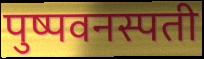
पुष्पवनस्पती